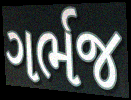
ગર્ભજ